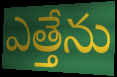
ఎత్తేను